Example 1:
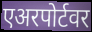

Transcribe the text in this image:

एअरपोर्टवर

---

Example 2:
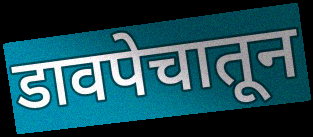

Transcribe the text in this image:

डावपेचातून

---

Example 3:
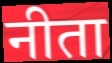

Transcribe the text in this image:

नीता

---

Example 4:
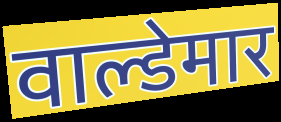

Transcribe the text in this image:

वाल्डेमार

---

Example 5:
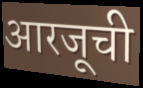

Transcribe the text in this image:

आरजूची